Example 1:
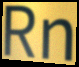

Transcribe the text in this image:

Rn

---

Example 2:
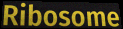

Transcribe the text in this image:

Ribosome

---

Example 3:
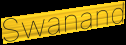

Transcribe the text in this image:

Swanand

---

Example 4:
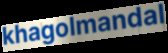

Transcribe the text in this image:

khagolmandal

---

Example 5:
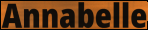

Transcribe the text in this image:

Annabelle